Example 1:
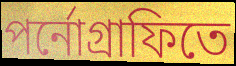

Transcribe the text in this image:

পর্নোগ্রাফিতে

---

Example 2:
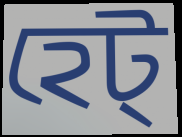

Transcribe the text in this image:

হেট্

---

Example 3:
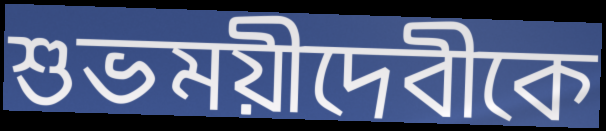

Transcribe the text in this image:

শুভময়ীদেবীকে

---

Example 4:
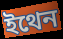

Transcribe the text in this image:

ইথেন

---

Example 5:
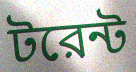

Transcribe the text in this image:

টরেন্ট